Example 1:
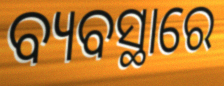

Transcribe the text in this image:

ବ୍ୟବସ୍ଥାରେ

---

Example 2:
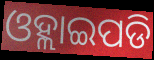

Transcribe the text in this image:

ଓହ୍ଲାଇପଡି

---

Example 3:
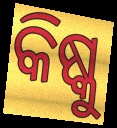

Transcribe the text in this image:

କିଷ୍କୁ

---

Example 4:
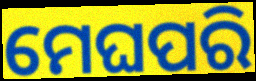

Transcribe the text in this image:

ମେଘପରି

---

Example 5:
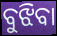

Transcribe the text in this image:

ବୁଝିବା